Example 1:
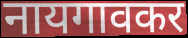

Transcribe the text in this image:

नायगावकर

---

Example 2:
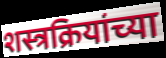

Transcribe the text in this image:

शस्त्रक्रियांच्या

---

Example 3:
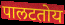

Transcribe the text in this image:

पालटतोय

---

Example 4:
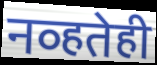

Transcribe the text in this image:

नव्हतेही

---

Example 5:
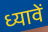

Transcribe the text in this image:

ध्यावें